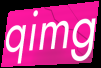
qimg